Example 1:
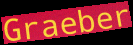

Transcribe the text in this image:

Graeber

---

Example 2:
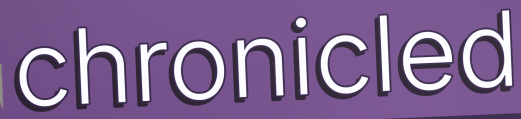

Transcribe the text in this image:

chronicled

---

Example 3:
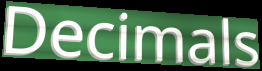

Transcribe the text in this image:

Decimals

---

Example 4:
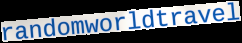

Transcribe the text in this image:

randomworldtravel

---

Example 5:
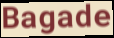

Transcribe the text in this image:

Bagade